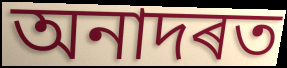
অনাদৰত